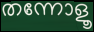
തന്നോളൂ